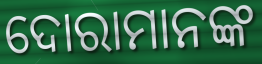
ଦୋରାମାନଙ୍କ